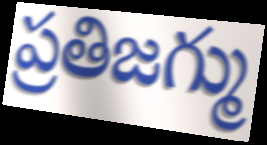
ప్రతిజగ్ము